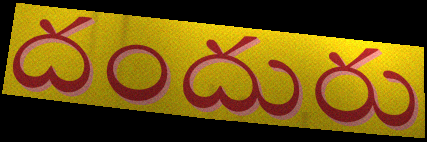
దందురు